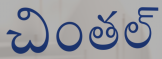
చింతల్